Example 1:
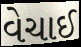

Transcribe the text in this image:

વેચાઈ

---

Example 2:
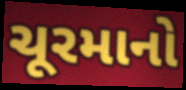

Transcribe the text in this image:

ચૂરમાનો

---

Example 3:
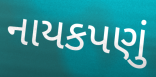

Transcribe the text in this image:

નાયકપણું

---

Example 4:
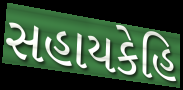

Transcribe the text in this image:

સહાયકેહિ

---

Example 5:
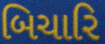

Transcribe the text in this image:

બિચારિ